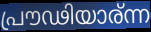
പ്രൗഢിയാര്ന്ന